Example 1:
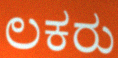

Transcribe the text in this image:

ಲಕರು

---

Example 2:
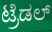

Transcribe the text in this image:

ಟ್ರೆಡಲ್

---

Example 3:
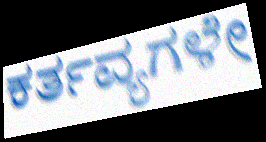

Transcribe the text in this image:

ಕರ್ತವ್ಯಗಳೇ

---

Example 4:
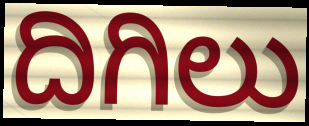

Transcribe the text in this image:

ದಿಗಿಲು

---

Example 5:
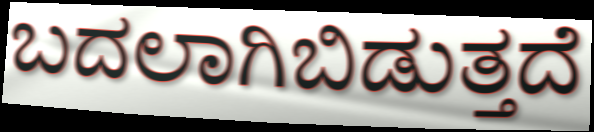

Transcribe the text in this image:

ಬದಲಾಗಿಬಿಡುತ್ತದೆ